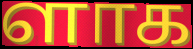
ளாக